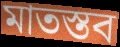
মাতস্তব